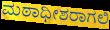
ಮಠಾಧೀಶರಾಗಲಿ